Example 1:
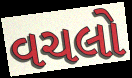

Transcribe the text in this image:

વચલો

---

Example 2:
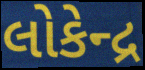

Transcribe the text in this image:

લોકેન્દ્ર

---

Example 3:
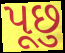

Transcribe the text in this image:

પૂછુ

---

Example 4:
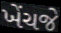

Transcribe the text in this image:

ખેંચજે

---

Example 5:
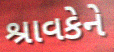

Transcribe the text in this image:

શ્રાવકેને